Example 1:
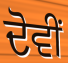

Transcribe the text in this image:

ਦੋਵੀਂ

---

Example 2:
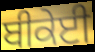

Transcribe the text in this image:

ਬੀਕੇਈ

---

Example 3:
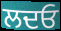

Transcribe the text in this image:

ਲਦਓ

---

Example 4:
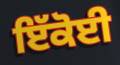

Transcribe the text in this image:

ਇੱਕੋਈ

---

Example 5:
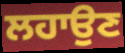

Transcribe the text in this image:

ਲਹਾਉਣ